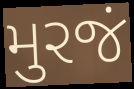
મુરજં